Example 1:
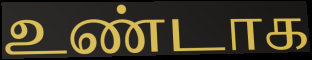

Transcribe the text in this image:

உண்டாக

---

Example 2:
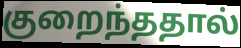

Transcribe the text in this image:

குறைந்ததால்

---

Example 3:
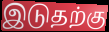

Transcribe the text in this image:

இடுதற்கு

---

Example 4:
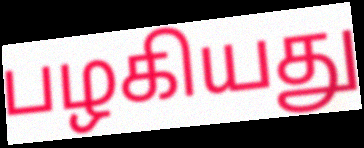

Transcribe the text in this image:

பழகியது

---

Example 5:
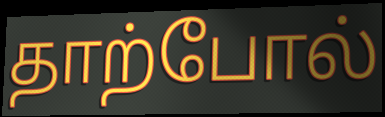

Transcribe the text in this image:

தாற்போல்